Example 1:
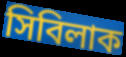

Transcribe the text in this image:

সিবিলাক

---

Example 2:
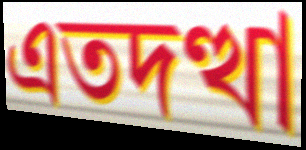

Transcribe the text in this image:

এতদত্থা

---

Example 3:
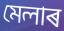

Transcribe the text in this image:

মেলাৰ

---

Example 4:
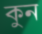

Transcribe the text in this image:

কুন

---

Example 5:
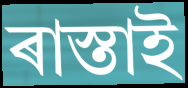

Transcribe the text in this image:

ৰাস্তাই